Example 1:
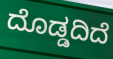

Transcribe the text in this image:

ದೊಡ್ಡದಿದೆ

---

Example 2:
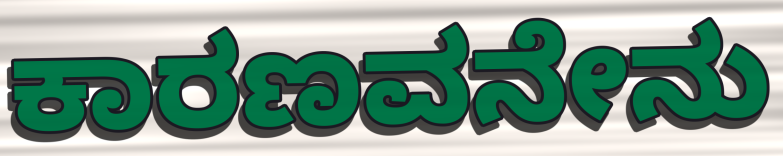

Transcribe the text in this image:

ಕಾರಣವನೇನು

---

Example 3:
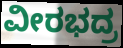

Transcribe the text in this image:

ವೀರಭದ್ರ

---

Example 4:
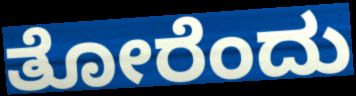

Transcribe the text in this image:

ತೋರೆಂದು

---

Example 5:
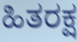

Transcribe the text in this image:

ಹಿತರಕ್ಷ